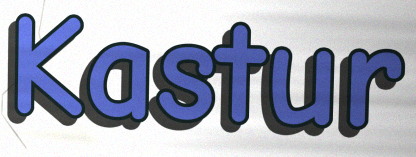
Kastur